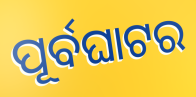
ପୂର୍ବଘାଟର